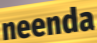
neenda